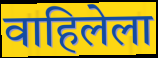
वाहिलेला